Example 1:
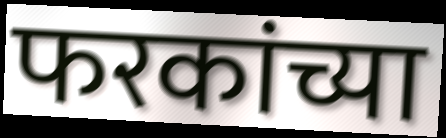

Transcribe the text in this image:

फरकांच्या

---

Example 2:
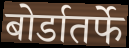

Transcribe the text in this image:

बोर्डातर्फे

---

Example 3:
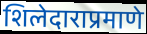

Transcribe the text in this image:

शिलेदाराप्रमाणे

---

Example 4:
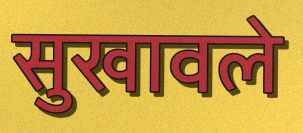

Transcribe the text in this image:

सुखावले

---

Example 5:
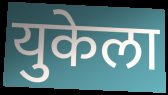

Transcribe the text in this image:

युकेला